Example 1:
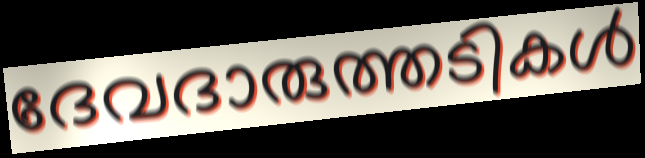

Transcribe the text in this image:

ദേവദാരുത്തടികൾ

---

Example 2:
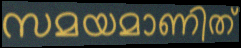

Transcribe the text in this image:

സമയമാണിത്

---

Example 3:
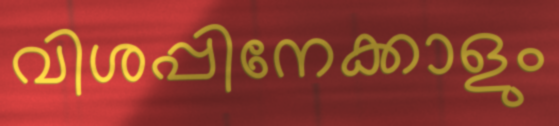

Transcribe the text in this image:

വിശപ്പിനേക്കാളും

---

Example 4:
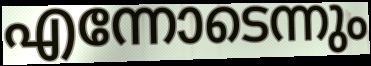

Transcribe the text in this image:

എന്നോടെന്നും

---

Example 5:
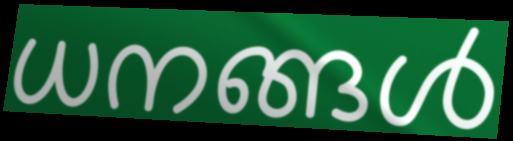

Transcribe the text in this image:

ധനങ്ങൾ